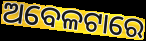
ଅବେଳଟାରେ